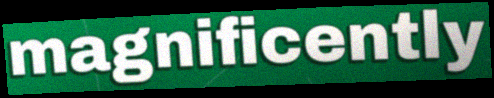
magnificently